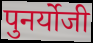
पुनर्योजी